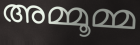
അമ്മൂമ്മ